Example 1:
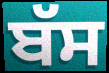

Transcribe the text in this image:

ਬੱਸ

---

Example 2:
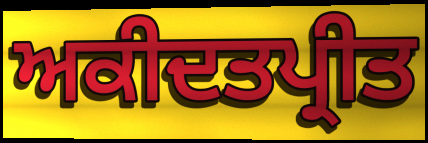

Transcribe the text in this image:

ਅਕੀਦਤਪ੍ਰੀਤ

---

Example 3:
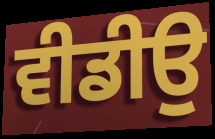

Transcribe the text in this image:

ਵੀਡੀਉ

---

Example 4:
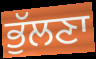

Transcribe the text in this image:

ਭੁੱਲਣਾ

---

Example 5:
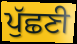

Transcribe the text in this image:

ਪੁੱਛਣੀ